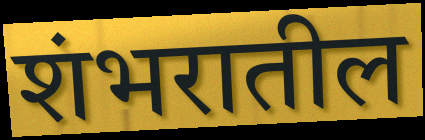
शंभरातील